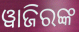
ୱାଜିରଙ୍କ